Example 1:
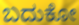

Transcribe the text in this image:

ಬದುಕೋ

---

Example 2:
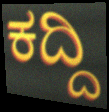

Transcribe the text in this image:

ಕದ್ದಿ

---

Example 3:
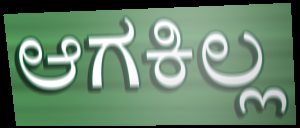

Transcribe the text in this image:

ಆಗಕಿಲ್ಲ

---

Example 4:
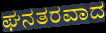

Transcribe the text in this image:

ಘನತರವಾದ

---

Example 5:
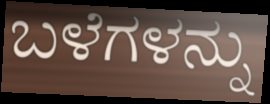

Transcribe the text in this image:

ಬಳೆಗಳನ್ನು